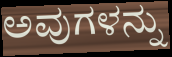
ಅವುಗಳನ್ನು